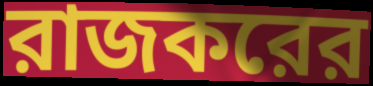
রাজকরের